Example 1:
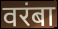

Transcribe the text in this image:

वरंबा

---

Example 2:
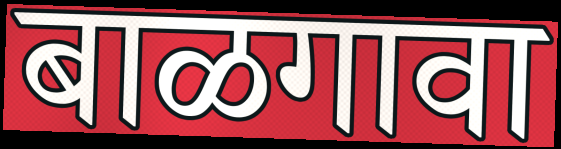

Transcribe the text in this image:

बाळगावा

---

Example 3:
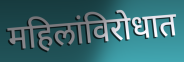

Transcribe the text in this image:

महिलांविरोधात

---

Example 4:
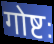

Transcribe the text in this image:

गोष्टः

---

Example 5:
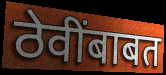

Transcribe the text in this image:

ठेवींबाबत